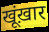
खूंख़ार